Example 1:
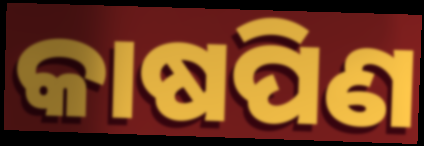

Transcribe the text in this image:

କାଷପିଣ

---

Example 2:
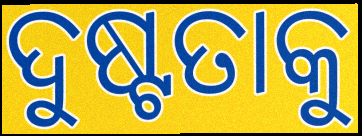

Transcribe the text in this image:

ଦୁଷ୍ଟତାକୁ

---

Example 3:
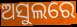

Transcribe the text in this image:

ଅସୁଲରେ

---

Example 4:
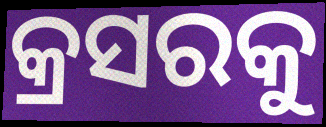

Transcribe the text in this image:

କ୍ରସରକୁ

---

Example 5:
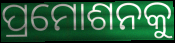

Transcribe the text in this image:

ପ୍ରମୋଶନକୁ